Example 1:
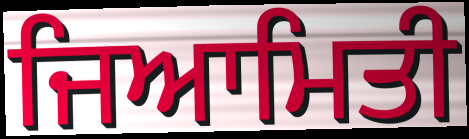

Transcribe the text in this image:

ਜਿਆਮਿਤੀ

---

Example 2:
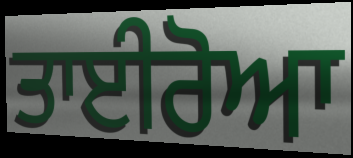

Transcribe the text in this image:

ਤਾਈਰੋਆ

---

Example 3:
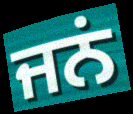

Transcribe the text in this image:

ਜਨਂ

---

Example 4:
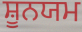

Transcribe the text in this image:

ਸ਼ੂਨਯਮ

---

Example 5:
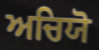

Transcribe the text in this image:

ਅਚਿਯੋ